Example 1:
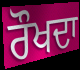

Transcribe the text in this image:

ਰੌਖਦਾ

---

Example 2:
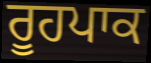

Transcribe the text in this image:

ਰੂਹਪਾਕ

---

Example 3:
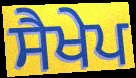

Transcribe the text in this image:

ਸੈਖੇਪ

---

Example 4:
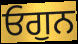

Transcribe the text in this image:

ਓਗੁਨ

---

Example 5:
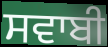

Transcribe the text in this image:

ਸਵਾਬੀ